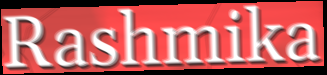
Rashmika